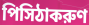
পিসিঠাকরুণ